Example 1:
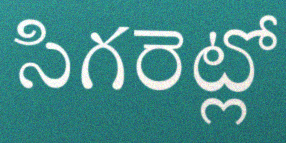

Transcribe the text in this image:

సిగరెట్లో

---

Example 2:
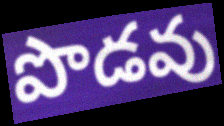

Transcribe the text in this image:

పొడవు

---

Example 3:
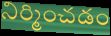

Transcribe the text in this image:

నిర్మించడం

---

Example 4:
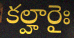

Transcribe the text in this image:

కల్హారైః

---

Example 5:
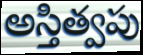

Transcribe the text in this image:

అస్తిత్వపు